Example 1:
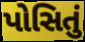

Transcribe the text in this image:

પોસિતું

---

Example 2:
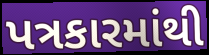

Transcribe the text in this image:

પત્રકારમાંથી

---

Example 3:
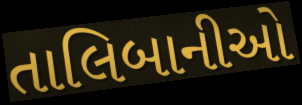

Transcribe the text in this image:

તાલિબાનીઓ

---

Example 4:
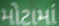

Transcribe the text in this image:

મોટામાં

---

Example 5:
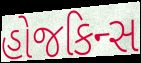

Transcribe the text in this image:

હોજકિન્સ